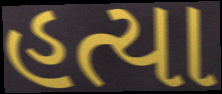
હત્યા